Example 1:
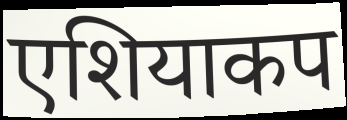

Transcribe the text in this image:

एशियाकप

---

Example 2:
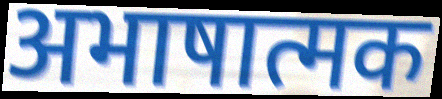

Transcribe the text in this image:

अभाषात्मक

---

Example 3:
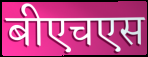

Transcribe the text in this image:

बीएचएस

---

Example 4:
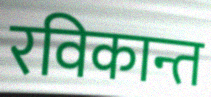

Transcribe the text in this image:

रविकान्त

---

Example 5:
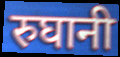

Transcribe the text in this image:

रुघानी